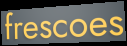
frescoes